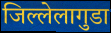
जिल्लेलागुडा